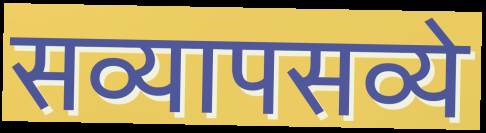
सव्यापसव्ये